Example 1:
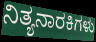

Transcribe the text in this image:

ನಿತ್ಯನಾರಕಿಗಳು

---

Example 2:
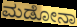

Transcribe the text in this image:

ಮಡೋನಾ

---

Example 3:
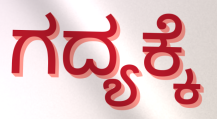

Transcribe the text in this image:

ಗದ್ಯಕ್ಕೆ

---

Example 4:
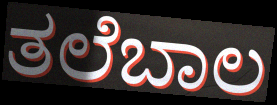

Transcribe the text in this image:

ತಲೆಬಾಲ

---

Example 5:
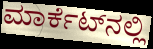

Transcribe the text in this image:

ಮಾರ್ಕೆಟ್‍ನಲ್ಲಿ